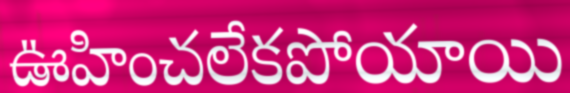
ఊహించలేకపోయాయి